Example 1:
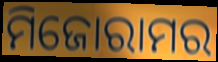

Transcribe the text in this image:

ମିଜୋରାମର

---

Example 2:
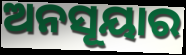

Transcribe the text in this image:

ଅନସୂୟାର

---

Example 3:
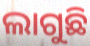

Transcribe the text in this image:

ଲାଗୁଛି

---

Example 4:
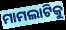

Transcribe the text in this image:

ମାମଲାଟିକୁ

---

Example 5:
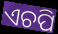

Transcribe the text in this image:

ଏଚପି